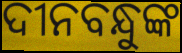
ଦୀନବନ୍ଧୁଙ୍କ